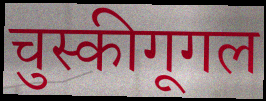
चुस्कीगूगल